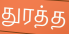
துரத்த